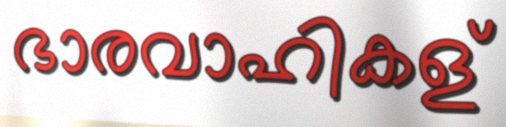
ഭാരവാഹികള്